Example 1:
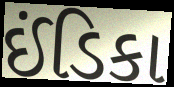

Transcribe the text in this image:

ઈંડિકા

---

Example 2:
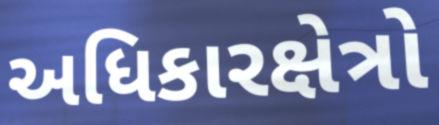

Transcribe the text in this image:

અધિકારક્ષેત્રો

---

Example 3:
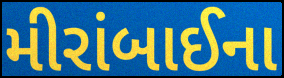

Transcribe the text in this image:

મીરાંબાઈના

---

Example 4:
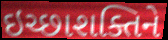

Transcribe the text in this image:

ઇચ્છાશક્તિને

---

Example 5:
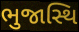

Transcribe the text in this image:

ભુજાસ્થિ